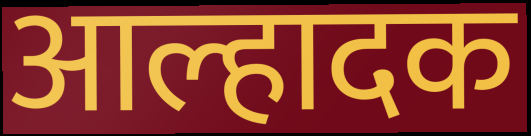
आल्हादक